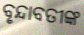
ବୃନ୍ଦାବତୀଙ୍କ